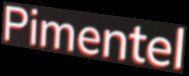
Pimentel